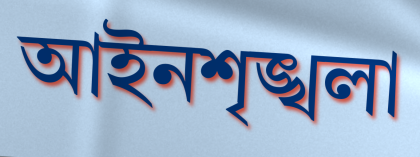
আইনশৃঙ্খলা